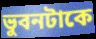
ভুবনটাকে